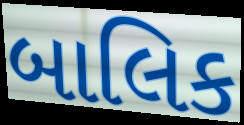
બાલિક